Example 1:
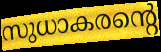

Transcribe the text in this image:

സുധാകരന്റെ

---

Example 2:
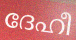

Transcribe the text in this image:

ദേഹീ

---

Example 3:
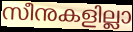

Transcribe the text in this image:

സീനുകളില്ലാ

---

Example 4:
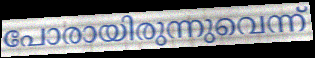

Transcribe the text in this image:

പോരായിരുന്നുവെന്ന്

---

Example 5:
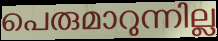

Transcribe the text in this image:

പെരുമാറുന്നില്ല